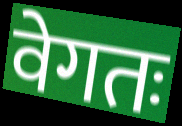
वेगतः